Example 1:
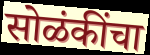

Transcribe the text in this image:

सोळंकींचा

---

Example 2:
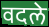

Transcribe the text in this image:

वदले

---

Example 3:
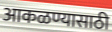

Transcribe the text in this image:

आकळण्यासाठी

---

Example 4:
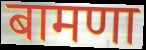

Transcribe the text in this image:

बामणा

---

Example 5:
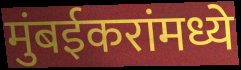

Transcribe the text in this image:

मुंबईकरांमध्ये